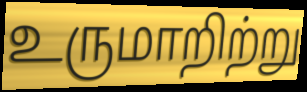
உருமாறிற்று